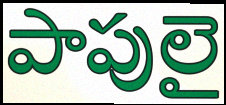
పాపులై